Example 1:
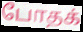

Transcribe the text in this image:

போதக்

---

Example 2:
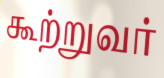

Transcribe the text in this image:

கூற்றுவர்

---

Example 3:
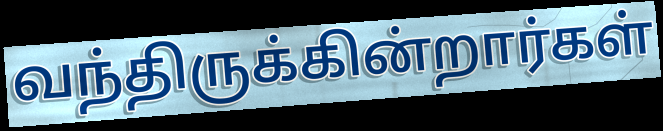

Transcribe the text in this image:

வந்திருக்கின்றார்கள்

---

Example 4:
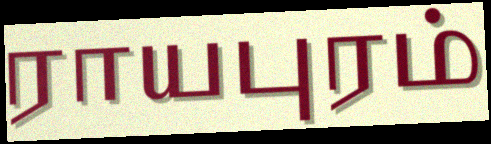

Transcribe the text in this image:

ராயபுரம்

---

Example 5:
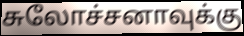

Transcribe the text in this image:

சுலோச்சனாவுக்கு